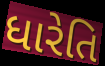
ધારેતિ